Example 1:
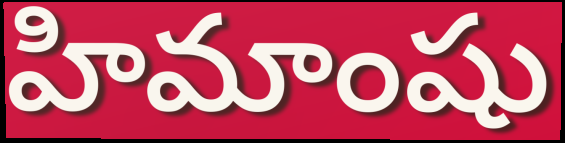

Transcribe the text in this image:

హిమాంషు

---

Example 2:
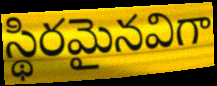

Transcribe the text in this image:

స్థిరమైనవిగా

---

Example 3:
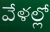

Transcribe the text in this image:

వేళల్లో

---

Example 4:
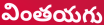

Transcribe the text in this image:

వింతయగు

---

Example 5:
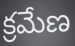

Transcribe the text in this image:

క్రమేణ